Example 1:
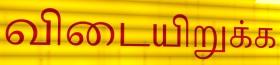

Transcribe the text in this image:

விடையிறுக்க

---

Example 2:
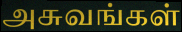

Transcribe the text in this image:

அசுவங்கள்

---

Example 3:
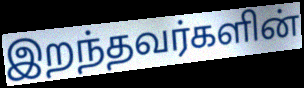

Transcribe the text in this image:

இறந்தவர்களின்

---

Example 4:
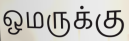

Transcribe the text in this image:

ஒமருக்கு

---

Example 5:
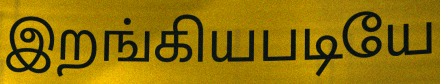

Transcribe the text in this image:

இறங்கியபடியே